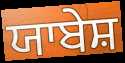
ਯਾਬੇਸ਼